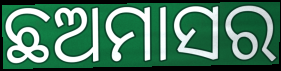
ଛଅମାସର